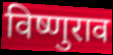
विष्णुराव